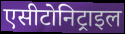
एसीटोनिट्राइल